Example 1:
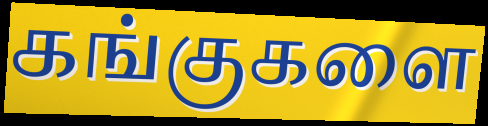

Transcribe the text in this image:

கங்குகளை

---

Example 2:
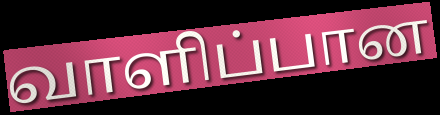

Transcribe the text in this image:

வாளிப்பான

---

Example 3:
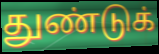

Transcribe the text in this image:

துண்டுக்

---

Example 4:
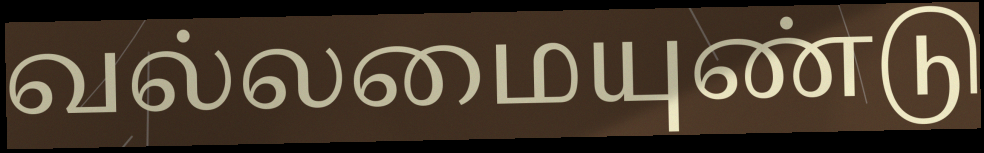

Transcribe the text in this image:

வல்லமையுண்டு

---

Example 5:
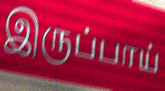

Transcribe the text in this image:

இருப்பாய்